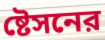
ষ্টেসনের